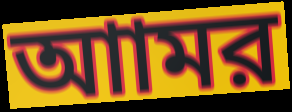
আামর